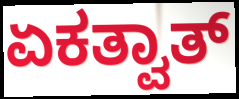
ಏಕತ್ವಾತ್